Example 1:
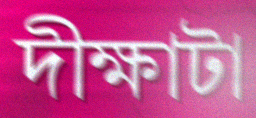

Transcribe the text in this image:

দীক্ষাটা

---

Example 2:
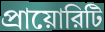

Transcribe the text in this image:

প্রায়োরিটি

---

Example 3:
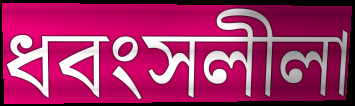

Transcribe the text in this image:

ধবংসলীলা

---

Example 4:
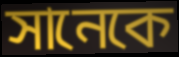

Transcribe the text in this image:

সানেকে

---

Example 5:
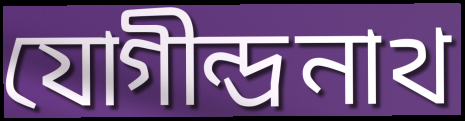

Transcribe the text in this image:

যোগীন্দ্রনাথ